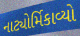
નાટ્યોર્મિકાવ્યો